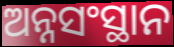
ଅନ୍ନସଂସ୍ଥାନ